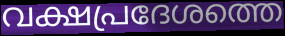
വക്ഷപ്രദേശത്തെ